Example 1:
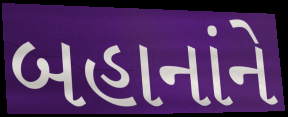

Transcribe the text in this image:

બહાનાંને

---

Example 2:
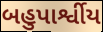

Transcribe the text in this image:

બહુપાર્શ્વીય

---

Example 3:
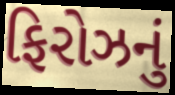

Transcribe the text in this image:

ફિરોઝનું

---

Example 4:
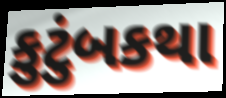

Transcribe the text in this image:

કુટુંબકથા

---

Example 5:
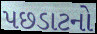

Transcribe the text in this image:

પછડાટનો